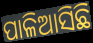
ପାଳିଆସିଛି